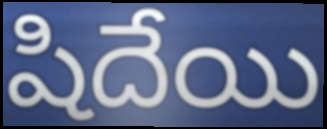
షిదేయి